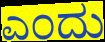
ಎಂದು